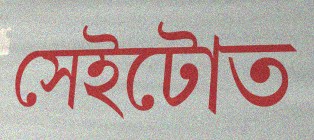
সেইটোত